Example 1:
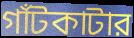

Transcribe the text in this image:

গাঁটকাটার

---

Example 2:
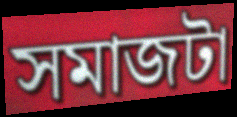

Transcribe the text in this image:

সমাজটা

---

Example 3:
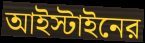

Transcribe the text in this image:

আইস্টাইনের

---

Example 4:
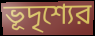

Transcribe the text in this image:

ভূদৃশ্যের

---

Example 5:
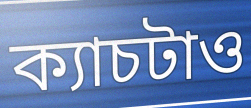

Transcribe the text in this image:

ক্যাচটাও